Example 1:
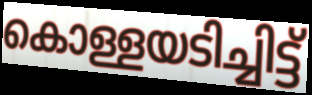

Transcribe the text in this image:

കൊള്ളയടിച്ചിട്ട്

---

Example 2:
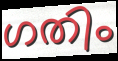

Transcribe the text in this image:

ഗതിം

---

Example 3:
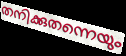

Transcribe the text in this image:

തനിക്കുതന്നെയും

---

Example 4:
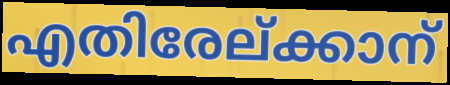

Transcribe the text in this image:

എതിരേല്ക്കാന്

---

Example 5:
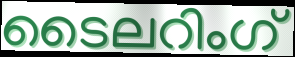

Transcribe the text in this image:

ടൈലറിംഗ്